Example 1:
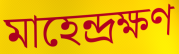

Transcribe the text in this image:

মাহেন্দ্রক্ষণ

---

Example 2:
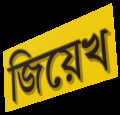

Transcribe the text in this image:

জিয়েখ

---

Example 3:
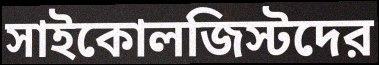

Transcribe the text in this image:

সাইকোলজিস্টদের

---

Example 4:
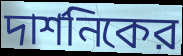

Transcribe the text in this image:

দার্শনিকের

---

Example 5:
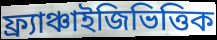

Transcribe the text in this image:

ফ্র্যাঞ্চাইজিভিত্তিক